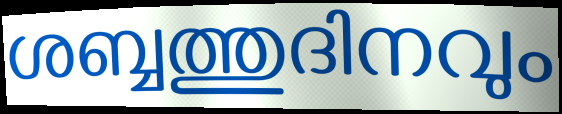
ശബ്ബത്തുദിനവും